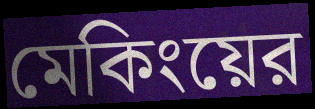
মেকিংয়ের